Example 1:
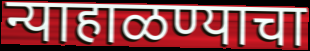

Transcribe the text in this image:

न्याहाळण्याचा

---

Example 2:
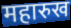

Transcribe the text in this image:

महारुख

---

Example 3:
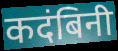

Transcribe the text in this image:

कदंबिनी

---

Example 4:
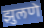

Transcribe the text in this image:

झुलणे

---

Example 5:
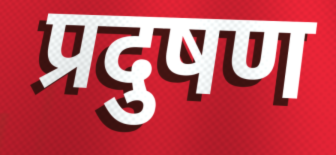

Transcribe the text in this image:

प्रदुषण